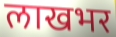
लाखभर